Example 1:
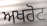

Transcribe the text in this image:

ਅਖਰੋਟ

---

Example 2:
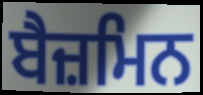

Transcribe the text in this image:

ਬੈਜ਼ਮਿਨ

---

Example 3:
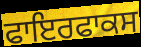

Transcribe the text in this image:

ਫਾਇਰਫਾਕਸ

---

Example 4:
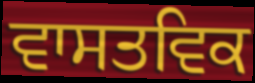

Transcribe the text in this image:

ਵਾਸਤਵਿਕ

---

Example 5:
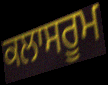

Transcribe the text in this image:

ਕਲਾਸਰੂਮ